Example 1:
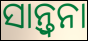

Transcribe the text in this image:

ସାନ୍ତ୍ବନା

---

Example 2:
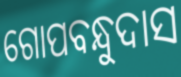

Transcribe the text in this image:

ଗୋପବନ୍ଧୁଦାସ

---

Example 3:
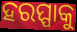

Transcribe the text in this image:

ହରପ୍ପାକୁ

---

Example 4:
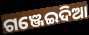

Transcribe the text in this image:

ଗଞ୍ଜେଇଦିଆ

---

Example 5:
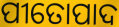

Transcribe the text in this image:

ପୀତୋପାଦ